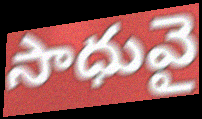
సాధువై